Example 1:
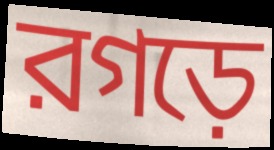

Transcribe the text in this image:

রগড়ে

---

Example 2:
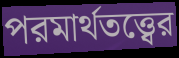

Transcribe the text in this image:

পরমার্থতত্ত্বের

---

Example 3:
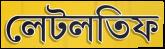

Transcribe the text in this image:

লেটলতিফ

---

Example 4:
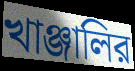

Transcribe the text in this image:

খাঞ্জালির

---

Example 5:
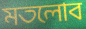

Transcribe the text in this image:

মতলোব